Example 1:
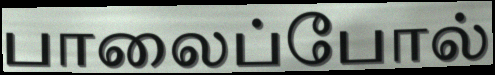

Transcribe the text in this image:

பாலைப்போல்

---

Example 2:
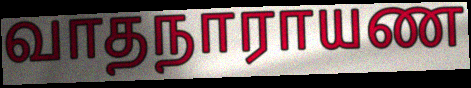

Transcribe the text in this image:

வாதநாராயண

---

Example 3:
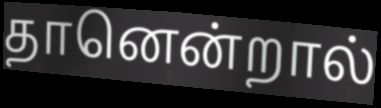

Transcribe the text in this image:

தானென்றால்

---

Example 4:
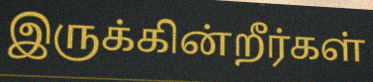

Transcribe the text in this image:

இருக்கின்றீர்கள்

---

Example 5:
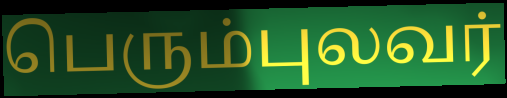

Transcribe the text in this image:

பெரும்புலவர்